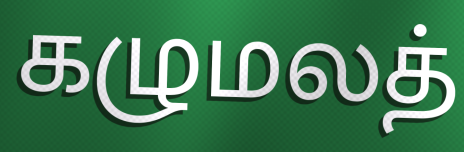
கழுமலத்